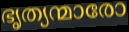
ഭൃത്യന്മാരോ